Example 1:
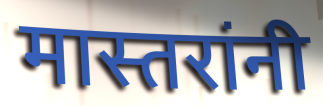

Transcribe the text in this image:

मास्तरांनी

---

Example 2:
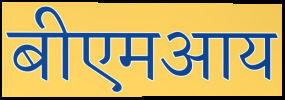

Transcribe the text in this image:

बीएमआय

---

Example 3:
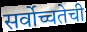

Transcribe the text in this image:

सर्वोच्चतेची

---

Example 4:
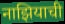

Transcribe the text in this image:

नाझियाची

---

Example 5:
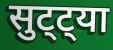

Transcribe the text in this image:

सुट्ट्या